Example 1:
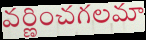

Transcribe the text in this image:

వర్ణించగలమా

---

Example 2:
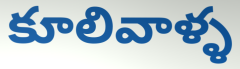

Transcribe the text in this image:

కూలివాళ్ళ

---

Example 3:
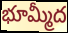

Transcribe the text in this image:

భూమ్మీద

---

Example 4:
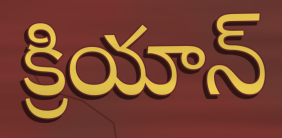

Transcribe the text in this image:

క్రియాన్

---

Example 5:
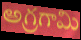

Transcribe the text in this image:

అగ్రగామి